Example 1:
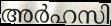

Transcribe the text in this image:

അർഹസി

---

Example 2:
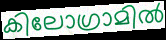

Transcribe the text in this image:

കിലോഗ്രാമിൽ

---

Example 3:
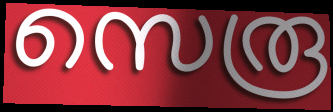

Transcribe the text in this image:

സെരൂ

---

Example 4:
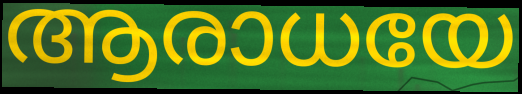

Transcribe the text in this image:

ആരാധയേ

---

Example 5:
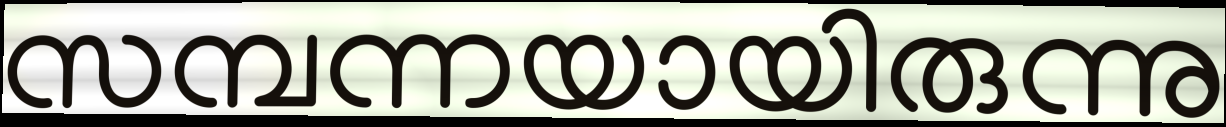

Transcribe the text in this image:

സമ്പന്നയായിരുന്നു